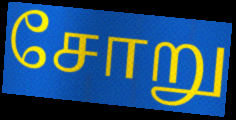
சோறு